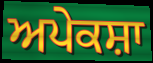
ਅਪੇਕਸ਼ਾ